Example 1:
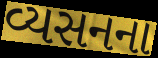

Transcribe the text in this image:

વ્યસનના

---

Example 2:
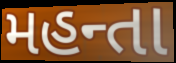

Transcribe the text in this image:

મહન્તા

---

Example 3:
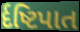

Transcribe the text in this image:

ર્દષ્ટિપાત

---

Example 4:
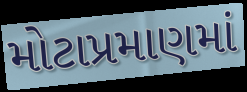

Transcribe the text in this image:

મોટાપ્રમાણમાં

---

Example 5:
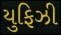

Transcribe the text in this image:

યુફિઝી